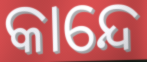
କାନ୍ଦେ